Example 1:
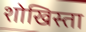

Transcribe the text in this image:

शोखिस्ता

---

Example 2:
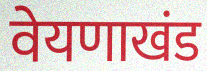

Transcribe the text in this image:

वेयणाखंड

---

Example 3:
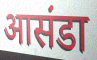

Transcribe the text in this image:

आसंडा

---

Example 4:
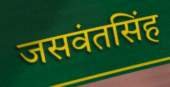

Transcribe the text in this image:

जसवंतसिंह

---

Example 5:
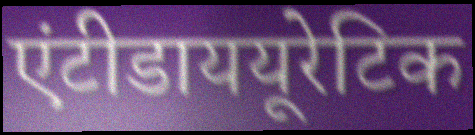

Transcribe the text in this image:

एंटीडाययूरेटिक